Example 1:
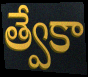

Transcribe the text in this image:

త్వేకా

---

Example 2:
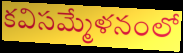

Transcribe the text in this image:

కవిసమ్మేళనంలో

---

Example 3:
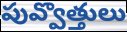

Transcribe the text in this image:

పువ్వొత్తులు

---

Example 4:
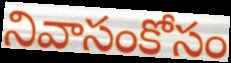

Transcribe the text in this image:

నివాసంకోసం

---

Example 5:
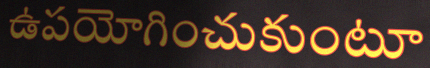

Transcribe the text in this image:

ఉపయోగించుకుంటూ